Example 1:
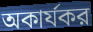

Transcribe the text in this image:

অকার্যকর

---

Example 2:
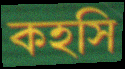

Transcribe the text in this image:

কহসি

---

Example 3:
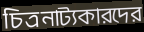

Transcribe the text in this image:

চিত্রনাট্যকারদের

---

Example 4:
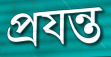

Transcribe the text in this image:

প্রযন্ত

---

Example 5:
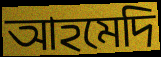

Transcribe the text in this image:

আহমেদি